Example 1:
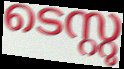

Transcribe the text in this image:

ടെസ്റ്റു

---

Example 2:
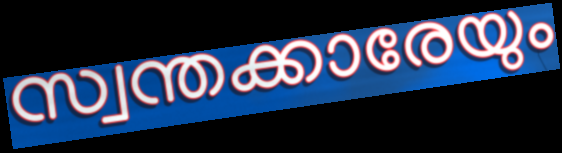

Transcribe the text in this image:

സ്വന്തക്കാരേയും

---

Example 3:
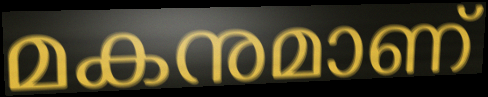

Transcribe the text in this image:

മകനുമാണ്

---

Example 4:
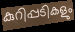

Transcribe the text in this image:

കുറിപ്പടികളും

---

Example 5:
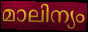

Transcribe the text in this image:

മാലിന്യം